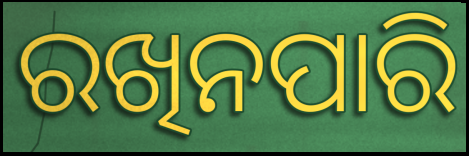
ରଖିନପାରି